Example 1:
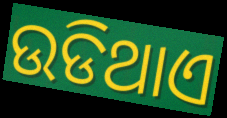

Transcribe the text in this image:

ଉଡିଥାଏ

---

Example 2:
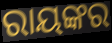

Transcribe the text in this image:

ରାୟଙ୍କର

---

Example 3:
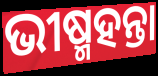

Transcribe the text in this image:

ଭୀଷ୍ମହନ୍ତା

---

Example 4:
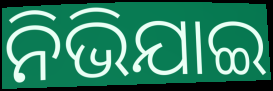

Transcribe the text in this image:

ନିଭିଯାଇ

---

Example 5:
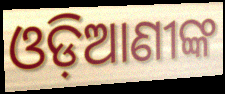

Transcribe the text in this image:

ଓଡ଼ିଆଣୀଙ୍କ